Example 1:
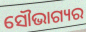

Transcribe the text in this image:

ସୌଭାଗ୍ୟର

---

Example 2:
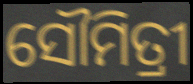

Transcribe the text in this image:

ସୌମିତ୍ରୀ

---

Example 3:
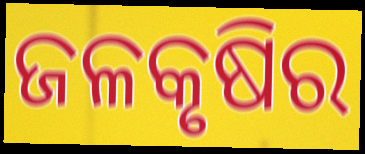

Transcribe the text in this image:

ଜଳକୃଷିର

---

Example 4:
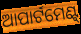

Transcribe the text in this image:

ଆପାର୍ଟମେଣ୍ଟ୍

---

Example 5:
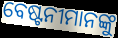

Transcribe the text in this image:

ବେଷ୍ଟନୀମାନଙ୍କୁ